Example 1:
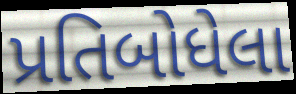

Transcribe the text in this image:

પ્રતિબોધેલા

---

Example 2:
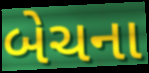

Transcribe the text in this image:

બેચના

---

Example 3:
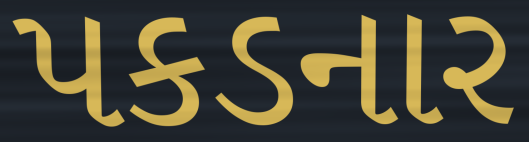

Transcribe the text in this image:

પકડનાર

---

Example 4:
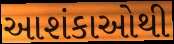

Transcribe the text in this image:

આશંકાઓથી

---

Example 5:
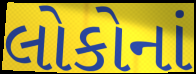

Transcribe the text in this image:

લોકોનાં